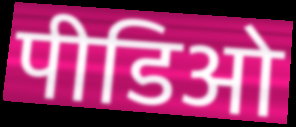
पीडिओ